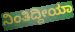
ನಿಂತಿದ್ದೀಯಾ